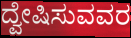
ದ್ವೇಷಿಸುವವರ